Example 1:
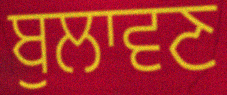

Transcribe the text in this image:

ਬੁਲਾਵਣ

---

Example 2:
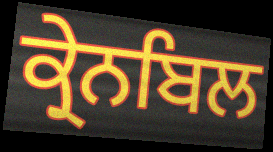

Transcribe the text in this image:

ਕ੍ਰੇਨਬਿਲ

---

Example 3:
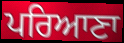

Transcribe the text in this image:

ਪਰਿਆਣਾ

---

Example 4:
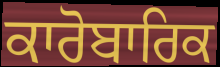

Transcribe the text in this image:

ਕਾਰੋਬਾਰਿਕ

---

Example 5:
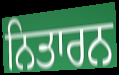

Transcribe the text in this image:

ਨਿਤਾਰਨ